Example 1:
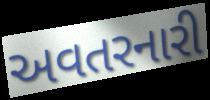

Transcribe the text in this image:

અવતરનારી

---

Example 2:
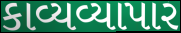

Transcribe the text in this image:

કાવ્યવ્યાપાર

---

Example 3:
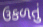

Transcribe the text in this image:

ઉકળતું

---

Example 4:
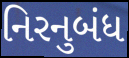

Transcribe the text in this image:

નિરનુબંધ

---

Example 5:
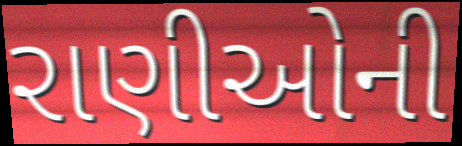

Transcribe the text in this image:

રાણીઓની